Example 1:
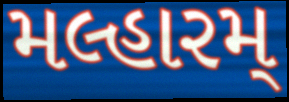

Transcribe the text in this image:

મલ્હારમ્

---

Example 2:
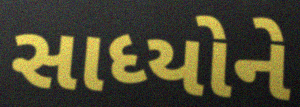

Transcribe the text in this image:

સાધ્યોને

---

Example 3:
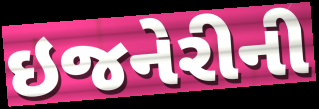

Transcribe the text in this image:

ઇજનેરીની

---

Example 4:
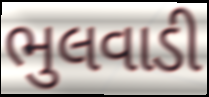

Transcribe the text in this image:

ભુલવાડી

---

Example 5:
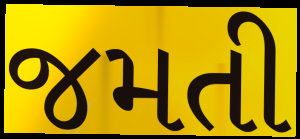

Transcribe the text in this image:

જમતી